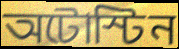
অটোস্টিন